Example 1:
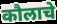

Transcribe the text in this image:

कौलाचे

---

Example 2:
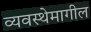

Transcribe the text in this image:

व्यवस्थेमागील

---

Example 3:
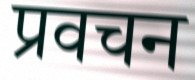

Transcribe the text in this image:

प्रवचन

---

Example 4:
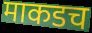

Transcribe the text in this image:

माकडच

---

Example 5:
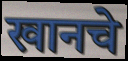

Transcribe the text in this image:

खानचे